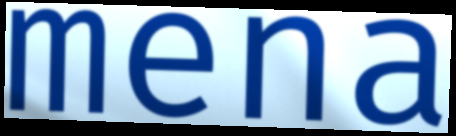
mena